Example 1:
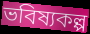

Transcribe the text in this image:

ভবিষ্যকল্প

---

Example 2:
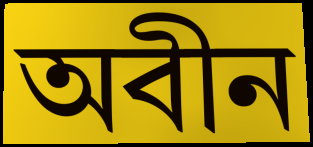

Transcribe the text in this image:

অবীন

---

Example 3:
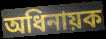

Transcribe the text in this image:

অধিনায়ক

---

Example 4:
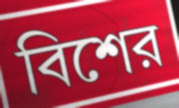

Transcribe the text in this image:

বিশের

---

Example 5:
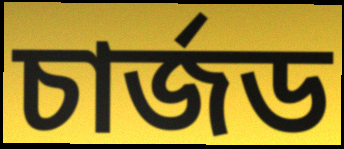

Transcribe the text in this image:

চার্জড